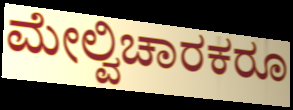
ಮೇಲ್ವಿಚಾರಕರೂ